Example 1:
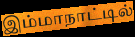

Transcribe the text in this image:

இம்மாநாட்டில்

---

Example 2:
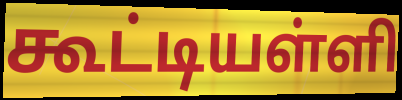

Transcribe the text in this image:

கூட்டியள்ளி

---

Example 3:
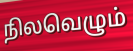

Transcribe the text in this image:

நிலவெழும்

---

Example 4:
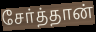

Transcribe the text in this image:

சேர்த்தான்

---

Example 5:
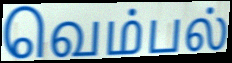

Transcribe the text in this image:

வெம்பல்